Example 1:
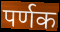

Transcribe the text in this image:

पर्णक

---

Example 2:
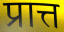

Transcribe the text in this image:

प्रात्त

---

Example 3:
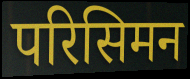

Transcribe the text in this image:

परिसिमन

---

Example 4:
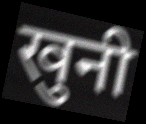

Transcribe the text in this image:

खुनी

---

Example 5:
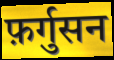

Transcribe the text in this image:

फ़र्गुसन